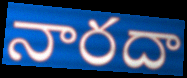
నారదా